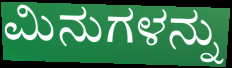
ಮಿನುಗಳನ್ನು